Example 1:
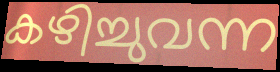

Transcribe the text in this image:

കഴിച്ചുവന്ന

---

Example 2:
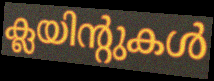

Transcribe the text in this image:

ക്ലയിന്റുകൾ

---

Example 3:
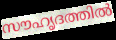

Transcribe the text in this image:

സൗഹൃദത്തിൽ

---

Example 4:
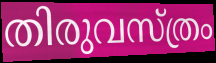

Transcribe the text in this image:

തിരുവസ്ത്രം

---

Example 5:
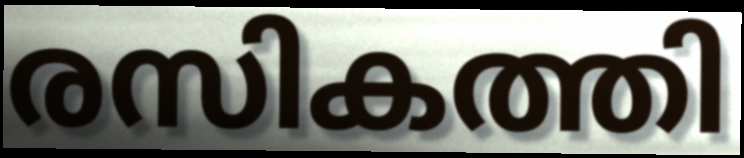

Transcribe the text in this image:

രസികത്തി